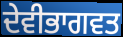
ਦੇਵੀਭਾਗਵਤ